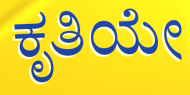
ಕೃತಿಯೇ